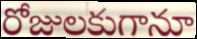
రోజులకుగానూ